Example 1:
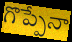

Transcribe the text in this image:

గొప్పేనా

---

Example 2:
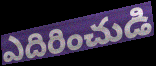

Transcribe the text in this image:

ఎదిరించుడి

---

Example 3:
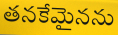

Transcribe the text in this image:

తనకేమైనను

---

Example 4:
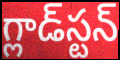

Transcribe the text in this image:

గ్లాడ్‌స్టన్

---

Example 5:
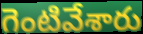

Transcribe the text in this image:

గెంటివేశారు